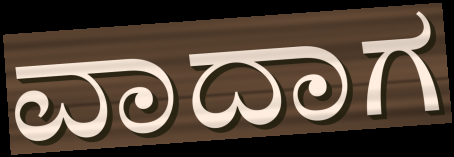
ವಾದಾಗ